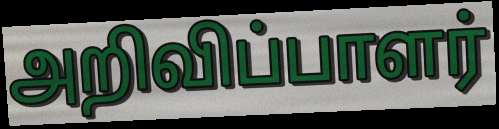
அறிவிப்பாளர்